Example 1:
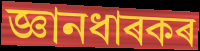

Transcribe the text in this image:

জ্ঞানধাৰকৰ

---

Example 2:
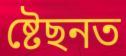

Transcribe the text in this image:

ষ্টেছনত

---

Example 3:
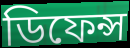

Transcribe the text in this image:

ডিফেন্স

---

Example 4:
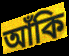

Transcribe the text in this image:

আঁকি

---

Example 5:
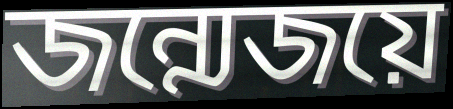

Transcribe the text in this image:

জন্মেজয়ে